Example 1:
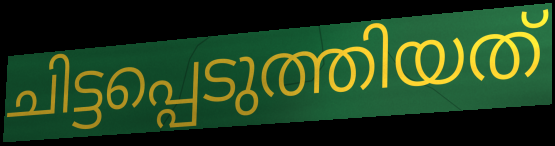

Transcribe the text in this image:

ചിട്ടപ്പെടുത്തിയത്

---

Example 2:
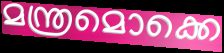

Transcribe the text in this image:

മന്ത്രമൊക്കെ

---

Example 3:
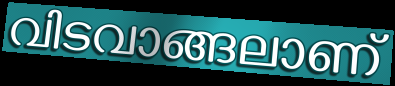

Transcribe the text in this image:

വിടവാങ്ങലാണ്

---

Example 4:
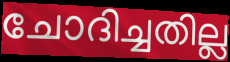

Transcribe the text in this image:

ചോദിച്ചതില്ല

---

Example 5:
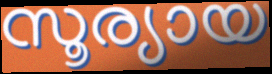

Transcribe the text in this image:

സൂര്യായ